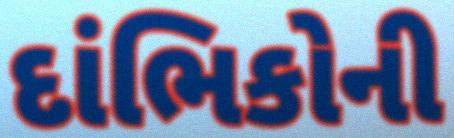
દાંભિકોની